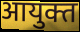
आयुक्‍त